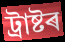
ট্ৰাষ্টৰ